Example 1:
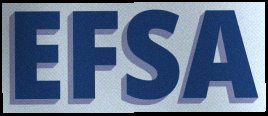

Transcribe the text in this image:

EFSA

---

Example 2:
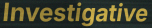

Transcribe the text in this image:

Investigative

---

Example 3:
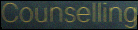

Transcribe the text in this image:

Counselling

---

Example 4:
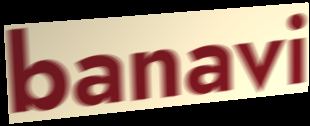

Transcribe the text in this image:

banavi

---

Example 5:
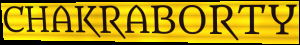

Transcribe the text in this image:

CHAKRABORTY